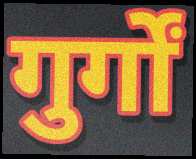
गुर्गों